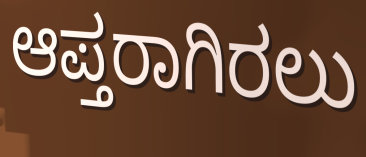
ಆಪ್ತರಾಗಿರಲು